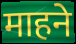
माहने